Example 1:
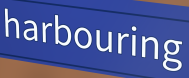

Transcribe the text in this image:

harbouring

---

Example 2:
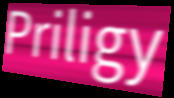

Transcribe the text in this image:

Priligy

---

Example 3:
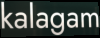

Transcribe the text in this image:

kalagam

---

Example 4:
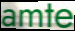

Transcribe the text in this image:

amte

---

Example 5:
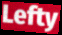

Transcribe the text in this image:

Lefty